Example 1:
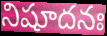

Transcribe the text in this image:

నిషూదనః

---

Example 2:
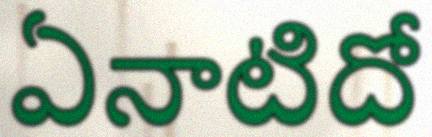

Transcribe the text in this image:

ఏనాటిదో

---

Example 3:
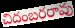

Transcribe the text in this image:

చిదంబరరావు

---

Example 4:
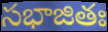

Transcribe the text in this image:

సభాజితః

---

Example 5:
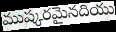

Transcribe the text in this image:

ముష్కరమైనదియు